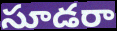
సూడరా